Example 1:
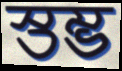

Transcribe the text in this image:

স্তম্ভ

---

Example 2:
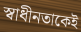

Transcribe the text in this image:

স্বাধীনতাকেই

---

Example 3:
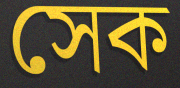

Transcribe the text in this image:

সেক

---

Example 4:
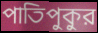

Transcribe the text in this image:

পাতিপুকুর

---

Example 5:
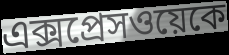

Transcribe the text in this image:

এক্সপ্রেসওয়েকে